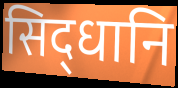
सिद्धानि